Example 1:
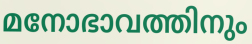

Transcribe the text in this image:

മനോഭാവത്തിനും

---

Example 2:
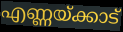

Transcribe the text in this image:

എണ്ണയ്ക്കാട്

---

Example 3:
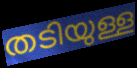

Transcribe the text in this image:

തടിയുള്ള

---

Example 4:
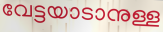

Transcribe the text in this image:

വേട്ടയാടാനുള്ള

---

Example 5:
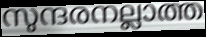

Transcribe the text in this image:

സുന്ദരനല്ലാത്ത